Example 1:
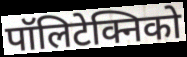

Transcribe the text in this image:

पॉलिटेक्निको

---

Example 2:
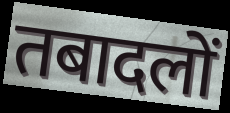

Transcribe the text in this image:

तबादलों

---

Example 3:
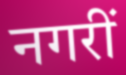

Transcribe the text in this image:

नगरीं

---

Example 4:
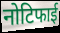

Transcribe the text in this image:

नोटिफाई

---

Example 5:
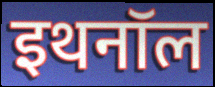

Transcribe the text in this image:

इथनॉल